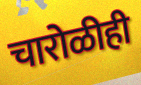
चारोळीही